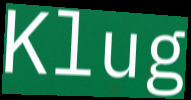
Klug